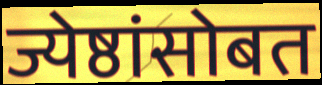
ज्येष्ठांसोबत